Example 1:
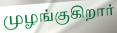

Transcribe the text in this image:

முழங்குகிறார்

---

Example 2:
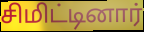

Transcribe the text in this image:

சிமிட்டினார்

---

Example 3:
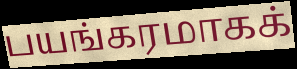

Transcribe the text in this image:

பயங்கரமாகக்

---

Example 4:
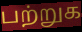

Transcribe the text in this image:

பற்றுக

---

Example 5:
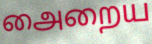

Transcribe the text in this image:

அைறைய